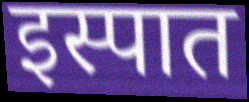
इस्पात